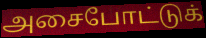
அசைபோட்டுக்